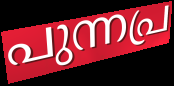
പുന്നപ്ര